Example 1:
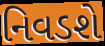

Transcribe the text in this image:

નિવડશે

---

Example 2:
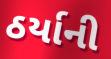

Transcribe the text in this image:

ઠર્યાની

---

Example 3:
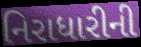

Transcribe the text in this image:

નિરાધારીની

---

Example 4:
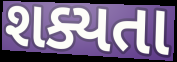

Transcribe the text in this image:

શક્યતા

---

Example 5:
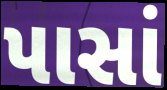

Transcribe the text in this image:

પાસાં